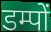
डम्पों